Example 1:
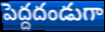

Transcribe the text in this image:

పెద్దదండుగా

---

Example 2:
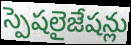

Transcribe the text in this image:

స్పెషలైజేషన్లు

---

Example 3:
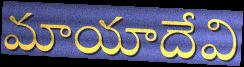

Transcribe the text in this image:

మాయాదేవి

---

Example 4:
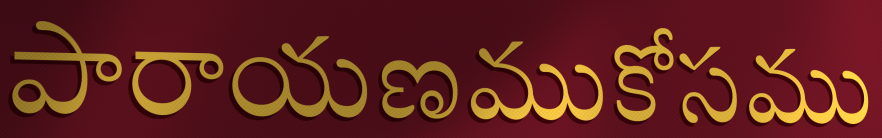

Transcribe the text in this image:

పారాయణముకోసము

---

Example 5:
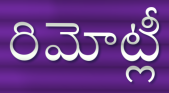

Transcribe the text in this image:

రిమోట్లీ